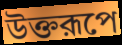
উক্তরূপে